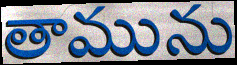
తామును